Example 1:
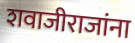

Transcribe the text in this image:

शवाजीराजांना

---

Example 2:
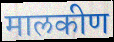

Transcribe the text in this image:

मालकीण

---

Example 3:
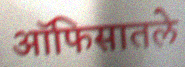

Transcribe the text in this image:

ऑफिसातले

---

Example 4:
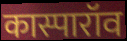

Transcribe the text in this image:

कास्पारॉव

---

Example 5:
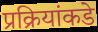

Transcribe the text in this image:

प्रक्रियांकडे